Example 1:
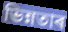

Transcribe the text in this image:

ভিন্নতাৰ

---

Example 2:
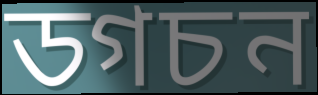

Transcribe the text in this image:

ডগচন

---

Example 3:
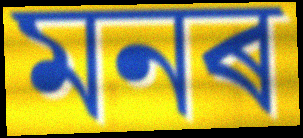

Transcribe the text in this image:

মনৰ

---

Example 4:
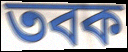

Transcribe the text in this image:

তবক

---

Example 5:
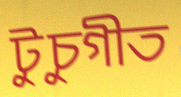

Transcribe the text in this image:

টুচুগীত